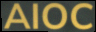
AIOC